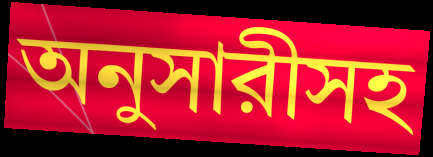
অনুসারীসহ